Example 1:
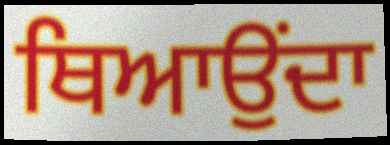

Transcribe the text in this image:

ਥਿਆਉਂਦਾ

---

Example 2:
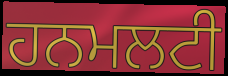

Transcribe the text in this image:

ਹਨਮਲਟੀ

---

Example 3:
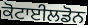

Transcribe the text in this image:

ਕੋਟਾਈਲਡੋਨ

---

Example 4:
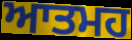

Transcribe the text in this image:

ਆਤਮਹ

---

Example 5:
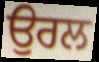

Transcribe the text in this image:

ਉਰਲ